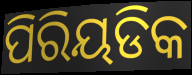
ପିରିୟଡିକ